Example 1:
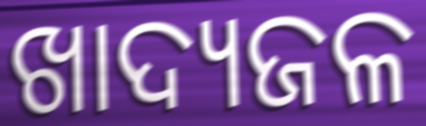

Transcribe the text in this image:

ଖାଦ୍ୟଜଳ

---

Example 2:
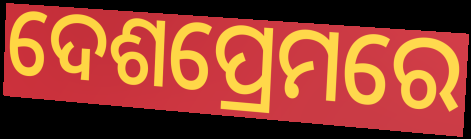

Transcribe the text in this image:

ଦେଶପ୍ରେମରେ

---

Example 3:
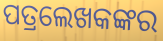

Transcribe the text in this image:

ପତ୍ରଲେଖକଙ୍କର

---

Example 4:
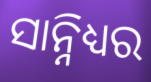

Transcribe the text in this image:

ସାନ୍ନିଧ୍ୟର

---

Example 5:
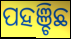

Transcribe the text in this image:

ପହଞ୍ଚିଛ